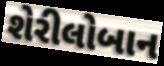
શેરીલોબાન